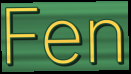
Fen